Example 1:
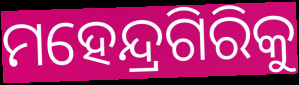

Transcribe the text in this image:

ମହେନ୍ଦ୍ରଗିରିକୁ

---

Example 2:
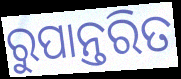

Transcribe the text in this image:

ରୁପାନ୍ତରିତ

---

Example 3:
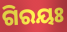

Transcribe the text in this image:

ଗିରୟଃ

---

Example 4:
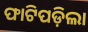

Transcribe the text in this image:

ଫାଟିପଡ଼ିଲା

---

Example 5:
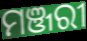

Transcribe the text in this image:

ମଞ୍ଜରୀ